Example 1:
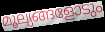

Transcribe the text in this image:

മൂല്യങ്ങളോടും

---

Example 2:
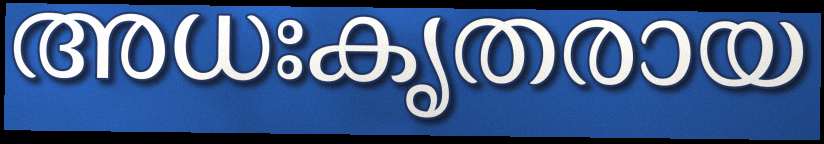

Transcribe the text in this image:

അധഃകൃതരായ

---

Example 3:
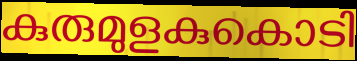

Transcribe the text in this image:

കുരുമുളകുകൊടി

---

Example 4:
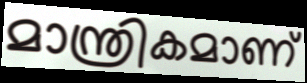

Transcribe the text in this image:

മാന്ത്രികമാണ്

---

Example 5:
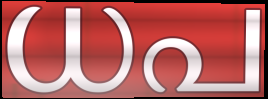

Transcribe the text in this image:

ധപ